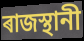
ৰাজস্থানী